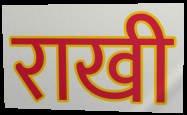
राखी